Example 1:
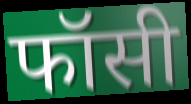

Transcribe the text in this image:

फॉसी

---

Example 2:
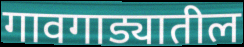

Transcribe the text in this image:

गावगाड्यातील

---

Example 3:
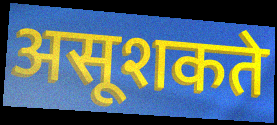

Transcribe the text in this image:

असूशकते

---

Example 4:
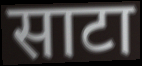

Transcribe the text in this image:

साटा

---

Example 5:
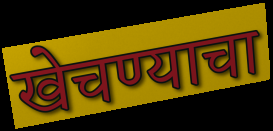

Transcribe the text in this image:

खेचण्याचा